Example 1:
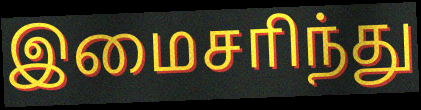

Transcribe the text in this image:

இமைசரிந்து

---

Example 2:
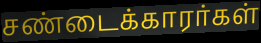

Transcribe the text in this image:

சண்டைக்காரர்கள்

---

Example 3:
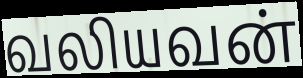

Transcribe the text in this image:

வலியவன்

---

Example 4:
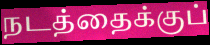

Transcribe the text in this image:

நடத்தைக்குப்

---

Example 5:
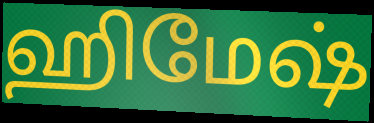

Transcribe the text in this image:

ஹிமேஷ்